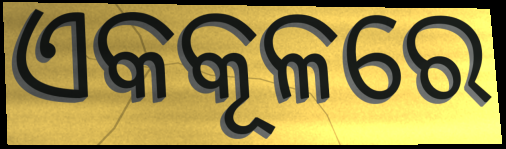
ଏକକୂଳରେ